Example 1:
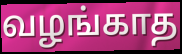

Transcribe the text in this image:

வழங்காத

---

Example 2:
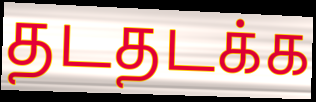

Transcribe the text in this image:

தடதடக்க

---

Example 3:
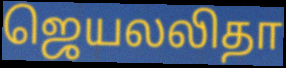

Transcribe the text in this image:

ஜெயலலிதா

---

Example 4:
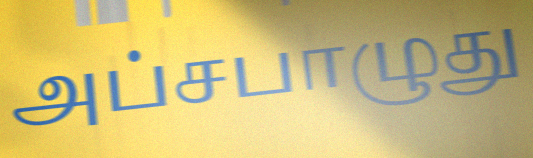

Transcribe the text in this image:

அப்சபாழுது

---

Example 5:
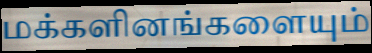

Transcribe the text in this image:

மக்களினங்களையும்